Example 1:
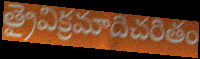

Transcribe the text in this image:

త్రైవిక్రమాదిచరితం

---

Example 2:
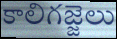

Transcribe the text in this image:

కాలిగజ్జెలు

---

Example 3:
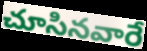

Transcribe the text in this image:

చూసినవారే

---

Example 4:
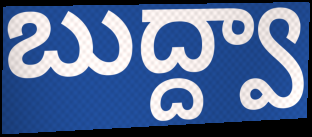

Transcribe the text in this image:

బుద్ద్వా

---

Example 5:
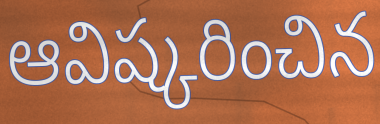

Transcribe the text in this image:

ఆవిష్కరించిన